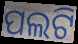
ପଲଟି